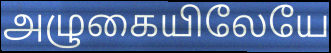
அழுகையிலேயே